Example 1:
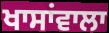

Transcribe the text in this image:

ਖਾਸਾਂਵਾਲਾ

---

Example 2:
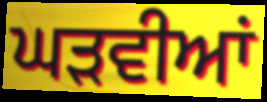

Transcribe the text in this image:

ਘੜਵੀਆਂ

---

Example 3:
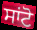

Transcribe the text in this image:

ਸਾਂਟੋ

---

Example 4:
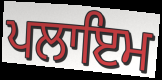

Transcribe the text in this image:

ਪਲਾਇਮ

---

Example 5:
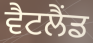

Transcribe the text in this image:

ਵੈਟਲੈਂਡ